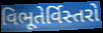
વિભૂતેર્વિસ્તરો